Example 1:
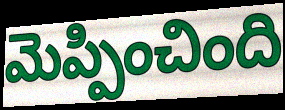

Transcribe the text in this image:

మెప్పించింది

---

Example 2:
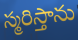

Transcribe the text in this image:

స్మరిస్తాను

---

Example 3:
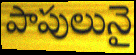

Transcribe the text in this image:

పాపులునై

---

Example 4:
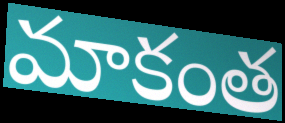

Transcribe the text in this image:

మాకంత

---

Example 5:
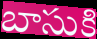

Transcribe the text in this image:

బాసుకి